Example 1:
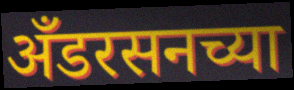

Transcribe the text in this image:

अँडरसनच्या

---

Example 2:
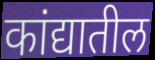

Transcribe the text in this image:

कांद्यातील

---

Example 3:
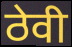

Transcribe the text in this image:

ठेवी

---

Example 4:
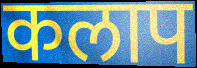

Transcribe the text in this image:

कलाप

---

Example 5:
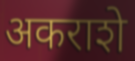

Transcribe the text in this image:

अकराशे